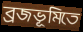
ব্রজভূমিতে